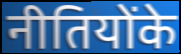
नीतियोंके